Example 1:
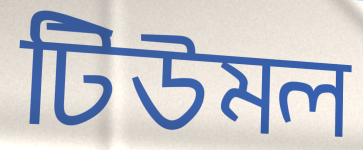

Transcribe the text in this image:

টিউমল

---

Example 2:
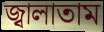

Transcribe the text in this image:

জ্বালাতাম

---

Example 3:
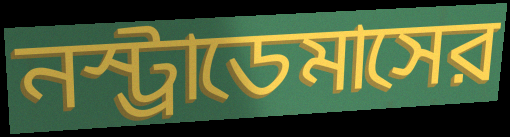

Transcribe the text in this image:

নস্ট্রাডেমাসের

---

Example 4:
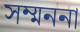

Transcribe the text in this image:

সম্মননা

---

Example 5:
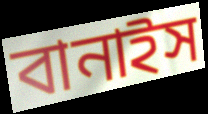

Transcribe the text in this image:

বানাইস